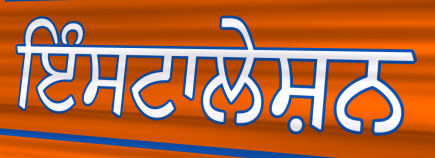
ਇੰਸਟਾਲੇਸ਼ਨ